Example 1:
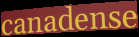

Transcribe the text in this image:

canadense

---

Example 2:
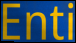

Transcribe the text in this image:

Enti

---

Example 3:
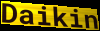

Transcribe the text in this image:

Daikin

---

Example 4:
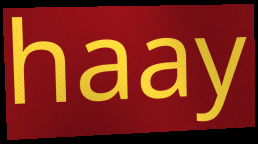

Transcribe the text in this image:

haay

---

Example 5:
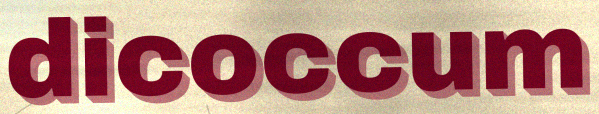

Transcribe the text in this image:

dicoccum